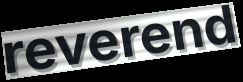
reverend